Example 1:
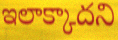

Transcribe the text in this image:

ఇలాక్కాదని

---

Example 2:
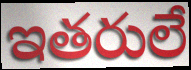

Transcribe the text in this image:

ఇతరులే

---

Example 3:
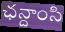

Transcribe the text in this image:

ఛన్దాంసి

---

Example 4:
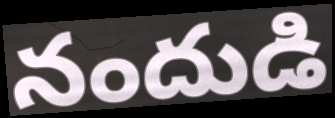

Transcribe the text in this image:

నందుడి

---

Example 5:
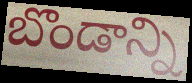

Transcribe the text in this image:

బొండాన్ని